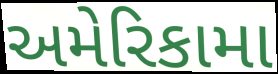
અમેરિકામા